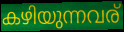
കഴിയുന്നവര്